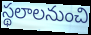
స్థలాలనుంచి